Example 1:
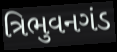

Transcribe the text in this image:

ત્રિભુવનગંડ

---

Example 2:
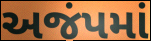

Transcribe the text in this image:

અજંપમાં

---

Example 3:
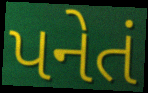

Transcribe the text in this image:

પનેતં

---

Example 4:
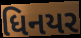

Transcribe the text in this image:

ધિનયર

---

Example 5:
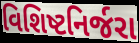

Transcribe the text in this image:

વિશિષ્ટનિર્જરા